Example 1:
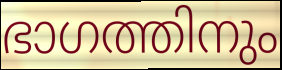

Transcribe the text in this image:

ഭാഗത്തിനും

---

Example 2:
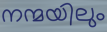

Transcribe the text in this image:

നന്മയിലും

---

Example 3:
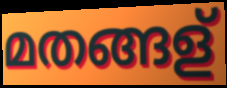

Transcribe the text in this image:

മതങ്ങള്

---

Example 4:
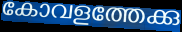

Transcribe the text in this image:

കോവളത്തേക്കു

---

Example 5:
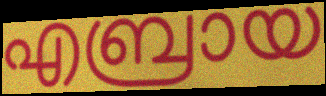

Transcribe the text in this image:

എബ്രായ